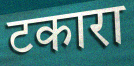
टकारा